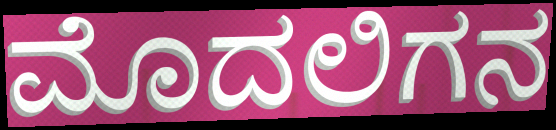
ಮೊದಲಿಗನ